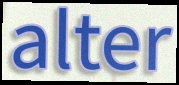
alter